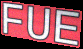
FUE